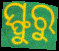
ସ୍ଫୁରୁ